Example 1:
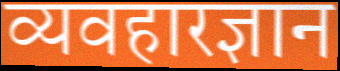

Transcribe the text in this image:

व्यवहारज्ञान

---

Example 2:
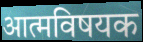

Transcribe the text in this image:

आत्मविषयक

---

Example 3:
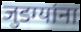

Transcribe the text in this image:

जुडग्यांना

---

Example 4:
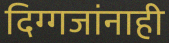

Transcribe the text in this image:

दिग्गजांनाही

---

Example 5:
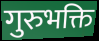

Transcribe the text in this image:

गुरुभक्ति